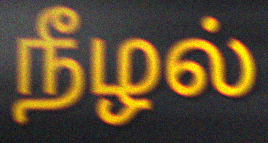
நீழல்